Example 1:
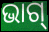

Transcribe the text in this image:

ଭାଗ୍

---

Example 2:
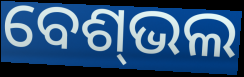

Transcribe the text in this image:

ବେଶ୍‌ଭଲ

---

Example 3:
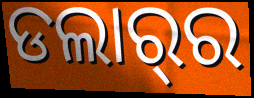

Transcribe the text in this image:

ଡଲାର୍‌ର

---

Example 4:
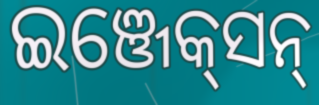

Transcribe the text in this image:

ଇଞ୍ଜେକ୍‍ସନ୍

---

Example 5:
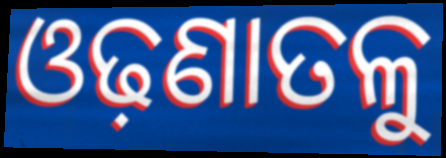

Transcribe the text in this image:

ଓଢ଼ଣାତଳୁ